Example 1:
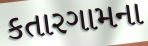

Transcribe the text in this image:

કતારગામના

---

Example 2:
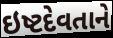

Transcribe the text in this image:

ઇષ્ટદેવતાને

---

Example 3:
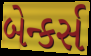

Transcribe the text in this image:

બેન્કર્સ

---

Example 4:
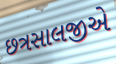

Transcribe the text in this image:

છત્રસાલજીએ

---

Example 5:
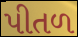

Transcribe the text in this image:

પીતળ